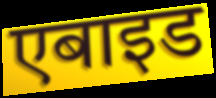
एबाइड